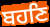
ਬਹਣਿ